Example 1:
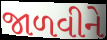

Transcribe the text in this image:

જાળવીને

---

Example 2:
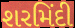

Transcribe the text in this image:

શરમિંદી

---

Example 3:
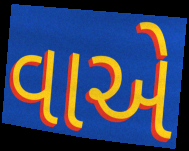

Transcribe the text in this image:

વાએ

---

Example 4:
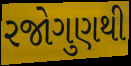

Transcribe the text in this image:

રજોગુણથી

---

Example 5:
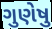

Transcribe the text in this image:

ગુણેષુ